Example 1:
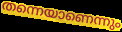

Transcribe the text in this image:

തന്നെയാണെന്നും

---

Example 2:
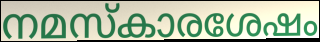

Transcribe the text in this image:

നമസ്കാരശേഷം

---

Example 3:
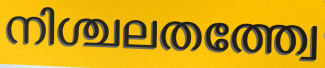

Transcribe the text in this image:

നിശ്ചലതത്ത്വേ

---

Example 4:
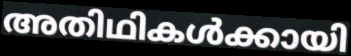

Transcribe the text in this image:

അതിഥികൾക്കായി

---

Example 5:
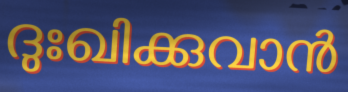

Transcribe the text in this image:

ദുഃഖിക്കുവാൻ